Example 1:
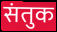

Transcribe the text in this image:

संतुक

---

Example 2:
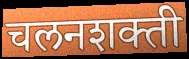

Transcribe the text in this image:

चलनशक्ती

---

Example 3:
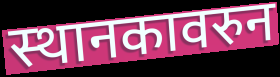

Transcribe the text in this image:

स्थानकावरुन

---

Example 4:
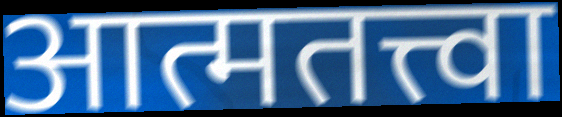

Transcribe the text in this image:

आत्मतत्त्वा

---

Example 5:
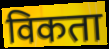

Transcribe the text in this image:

विकता